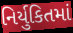
નિર્યુકિતમાં